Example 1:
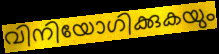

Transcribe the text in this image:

വിനിയോഗിക്കുകയും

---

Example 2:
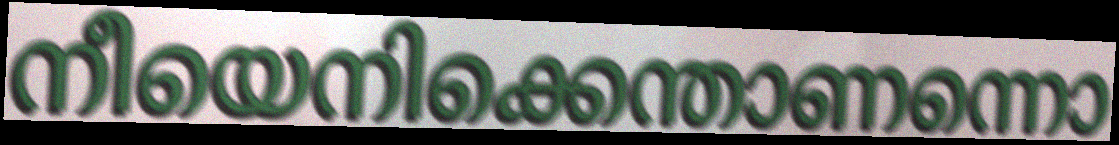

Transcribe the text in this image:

നീയെനിക്കെന്താണന്നൊ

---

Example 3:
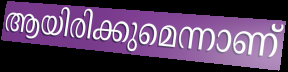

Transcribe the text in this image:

ആയിരിക്കുമെന്നാണ്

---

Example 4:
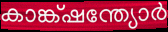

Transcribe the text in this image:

കാങ്ക്ഷന്ത്യോർ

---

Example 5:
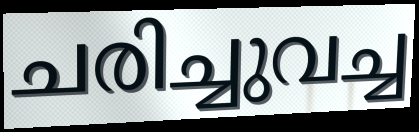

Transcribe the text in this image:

ചരിച്ചുവച്ച